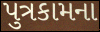
પુત્રકામના